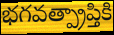
భగవత్ప్రాప్తికి